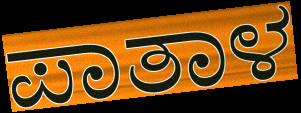
ಪಾತಾಳ